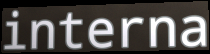
interna